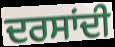
ਦਰਸਾਂਦੀ